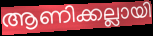
ആണിക്കല്ലായി